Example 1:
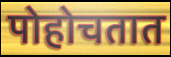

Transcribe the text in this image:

पोहोचतात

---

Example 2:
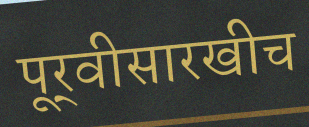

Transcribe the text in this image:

पूर्वीसारखीच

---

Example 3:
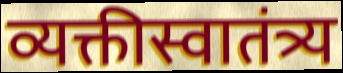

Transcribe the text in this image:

व्यक्तीस्वातंत्र्य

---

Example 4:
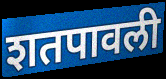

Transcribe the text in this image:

शतपावली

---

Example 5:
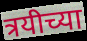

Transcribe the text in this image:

त्रयीच्या